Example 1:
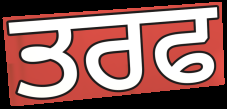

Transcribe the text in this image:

ਤਰਫ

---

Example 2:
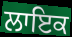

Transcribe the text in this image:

ਲਾਇਕ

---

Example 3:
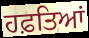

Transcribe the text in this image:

ਹਫ਼ਤਿਆਂ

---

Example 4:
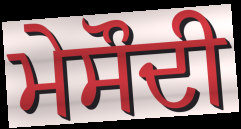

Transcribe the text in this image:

ਮੇਸੌਦੀ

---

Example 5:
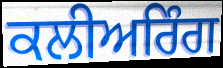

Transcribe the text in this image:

ਕਲੀਅਰਿੰਗ